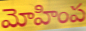
మోహింప